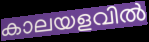
കാലയളവിൽ